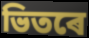
ভিতৰে